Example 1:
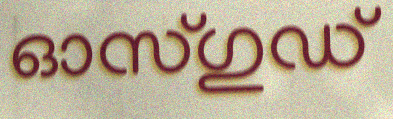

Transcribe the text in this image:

ഓസ്ഗുഡ്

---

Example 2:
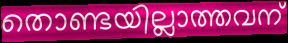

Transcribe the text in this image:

തൊണ്ടയില്ലാത്തവന്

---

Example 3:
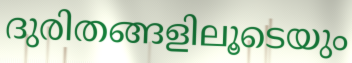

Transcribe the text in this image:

ദുരിതങ്ങളിലൂടെയും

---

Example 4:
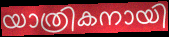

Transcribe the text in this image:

യാത്രികനായി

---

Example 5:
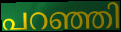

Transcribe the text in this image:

പറഞ്ഞി